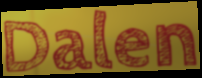
Dalen